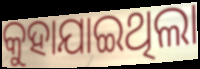
କୁହାଯାଇଥିଲା